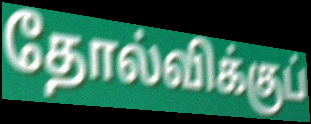
தோல்விக்குப்